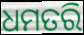
ଧମତରି